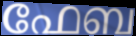
ഫേബ